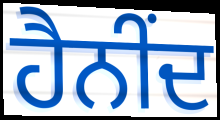
ਹੈਨੀਂਦ